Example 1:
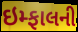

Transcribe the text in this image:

ઇમ્ફાલની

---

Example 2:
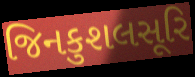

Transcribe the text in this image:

જિનકુશલસૂરિ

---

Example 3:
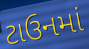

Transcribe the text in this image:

ટાઉનમાં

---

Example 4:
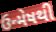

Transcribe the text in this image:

ઉન્મેષથી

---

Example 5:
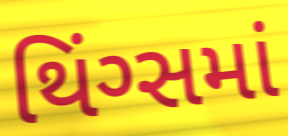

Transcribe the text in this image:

થિંગ્સમાં